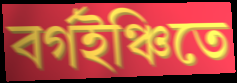
বর্গইঞ্চিতে